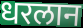
धरलान